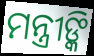
ମନ୍ତ୍ରୀଙ୍କି